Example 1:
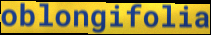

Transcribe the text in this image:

oblongifolia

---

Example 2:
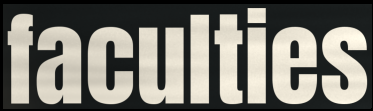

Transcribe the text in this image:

faculties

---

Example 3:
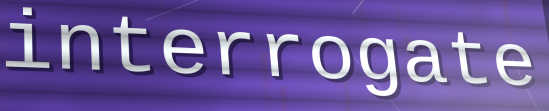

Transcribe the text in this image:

interrogate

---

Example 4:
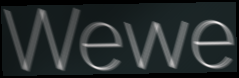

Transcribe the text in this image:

Wewe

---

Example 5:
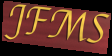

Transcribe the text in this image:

JFMS